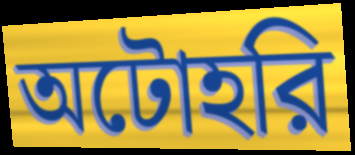
অটোহরি